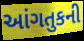
આંગતુકની